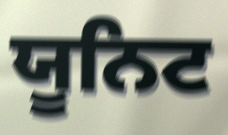
ਯੂਨਿਟ